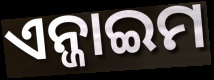
ଏନ୍ଜାଇମ